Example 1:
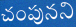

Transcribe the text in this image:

చంపునని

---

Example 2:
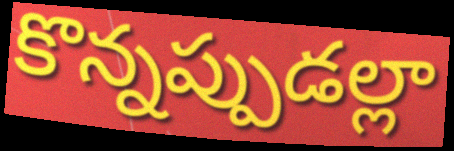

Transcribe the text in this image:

కొన్నప్పుడల్లా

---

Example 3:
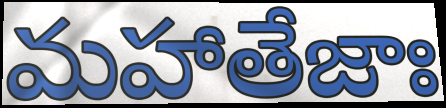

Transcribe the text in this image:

మహాతేజాః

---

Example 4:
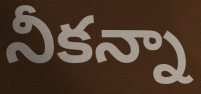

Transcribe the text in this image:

నీకన్నా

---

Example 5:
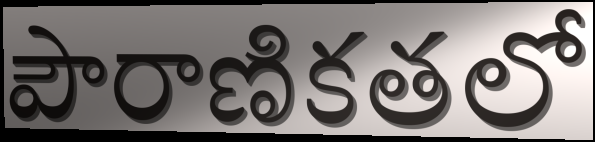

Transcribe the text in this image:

పౌరాణికతలో